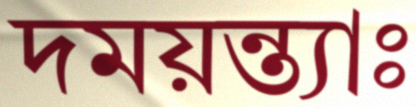
দময়ন্ত্যাঃ